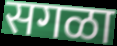
सगळा